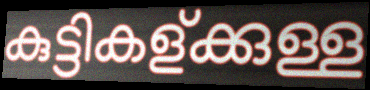
കുട്ടികള്ക്കുള്ള